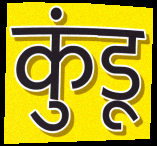
कुंडू